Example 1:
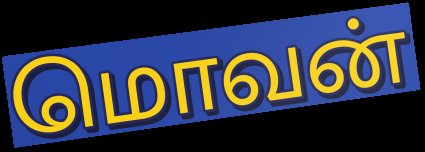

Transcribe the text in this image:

மொவன்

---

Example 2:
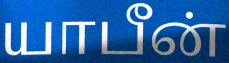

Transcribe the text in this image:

யாபீன்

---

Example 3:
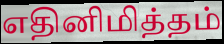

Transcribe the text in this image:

எதினிமித்தம்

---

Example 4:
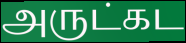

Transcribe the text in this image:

அருட்கட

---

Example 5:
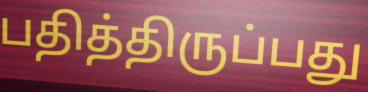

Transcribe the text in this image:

பதித்திருப்பது